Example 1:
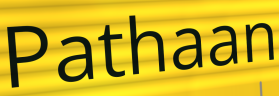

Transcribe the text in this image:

Pathaan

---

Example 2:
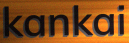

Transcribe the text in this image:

kankai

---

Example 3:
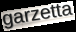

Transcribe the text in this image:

garzetta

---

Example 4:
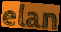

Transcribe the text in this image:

elan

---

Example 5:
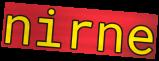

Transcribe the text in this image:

nirne